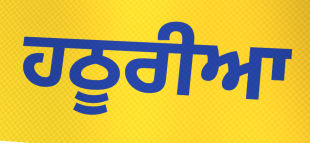
ਹਠੂਰੀਆ